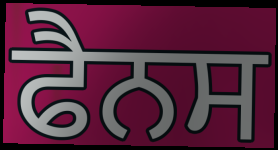
ਫੈਨਸ